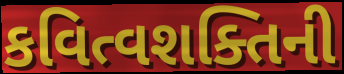
કવિત્વશક્તિની